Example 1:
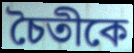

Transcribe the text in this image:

চৈতীকে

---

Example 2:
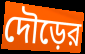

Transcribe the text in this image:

দৌড়ের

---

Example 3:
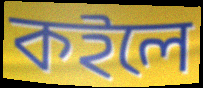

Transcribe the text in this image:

কইলে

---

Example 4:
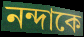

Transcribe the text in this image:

নন্দাকে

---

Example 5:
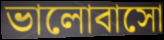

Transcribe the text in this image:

ভালোবাসো